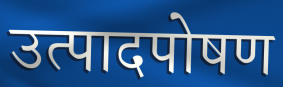
उत्पादपोषण